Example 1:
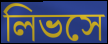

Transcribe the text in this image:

লিভসে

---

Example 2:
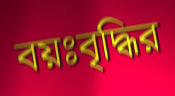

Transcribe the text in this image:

বয়ঃবৃদ্ধির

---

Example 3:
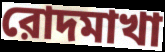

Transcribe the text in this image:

রোদমাখা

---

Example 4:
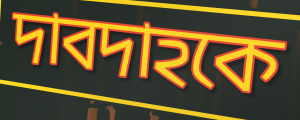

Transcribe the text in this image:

দাবদাহকে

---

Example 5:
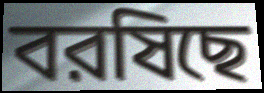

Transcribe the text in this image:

বরষিছে